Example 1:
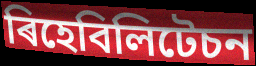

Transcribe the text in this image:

ৰিহেবিলিটেচন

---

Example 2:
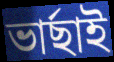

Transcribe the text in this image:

ভাৰ্ছাই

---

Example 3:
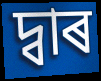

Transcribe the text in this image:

দ্বাৰ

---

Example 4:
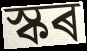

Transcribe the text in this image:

স্কৰ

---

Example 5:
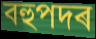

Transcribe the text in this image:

বহুপদৰ